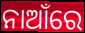
ନାଆଁରେ